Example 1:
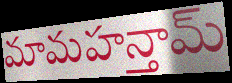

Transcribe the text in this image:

మామహన్తామ్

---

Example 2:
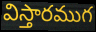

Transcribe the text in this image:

విస్తారముగ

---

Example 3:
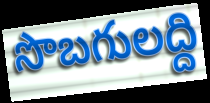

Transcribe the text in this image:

సొబగులద్ది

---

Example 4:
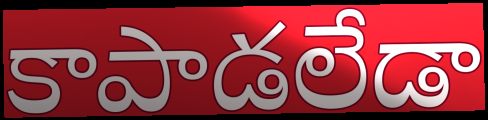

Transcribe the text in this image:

కాపాడలేడా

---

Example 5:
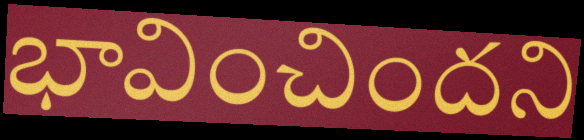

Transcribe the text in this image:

భావించిందని